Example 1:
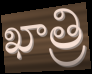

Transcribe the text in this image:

ఖాత్రి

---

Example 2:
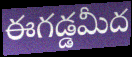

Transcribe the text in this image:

ఈగడ్డమీద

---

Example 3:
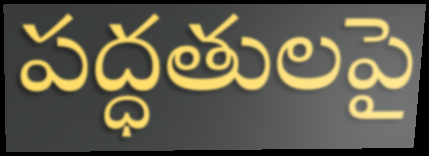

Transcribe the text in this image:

పద్ధతులపై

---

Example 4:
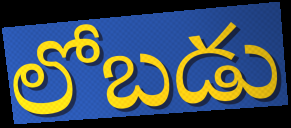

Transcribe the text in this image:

లోబడు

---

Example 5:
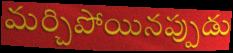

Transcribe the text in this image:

మర్చిపోయినప్పుడు